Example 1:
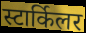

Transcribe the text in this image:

स्टार्किलर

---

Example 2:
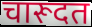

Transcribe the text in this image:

चारूदत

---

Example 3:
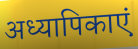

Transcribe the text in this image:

अध्यापिकाएं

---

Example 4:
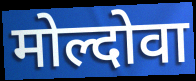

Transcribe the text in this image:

मोल्दोवा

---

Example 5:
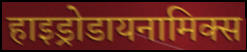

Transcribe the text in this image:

हाइड्रोडायनामिक्स